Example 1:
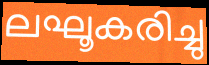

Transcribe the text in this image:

ലഘൂകരിച്ചു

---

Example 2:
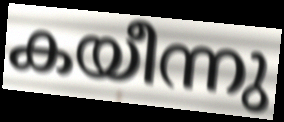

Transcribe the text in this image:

കയീന്നു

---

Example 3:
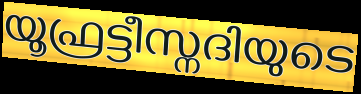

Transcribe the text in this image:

യൂഫ്രട്ടീസ്നദിയുടെ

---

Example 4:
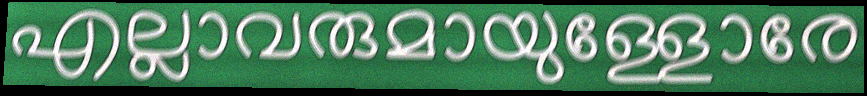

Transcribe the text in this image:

എല്ലാവരുമായുള്ളോരേ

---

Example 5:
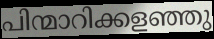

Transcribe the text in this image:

പിന്മാറിക്കളഞ്ഞു